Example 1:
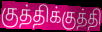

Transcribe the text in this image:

குத்திக்குத்தி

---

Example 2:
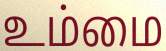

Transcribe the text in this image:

உம்மை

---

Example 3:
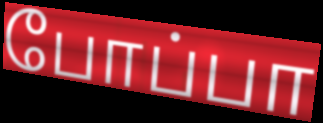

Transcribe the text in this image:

போப்பா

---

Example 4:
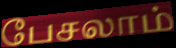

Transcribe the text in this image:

பேசலாம்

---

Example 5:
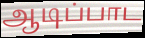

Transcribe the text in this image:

ஆடிப்பாட